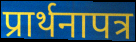
प्रार्थनापत्र